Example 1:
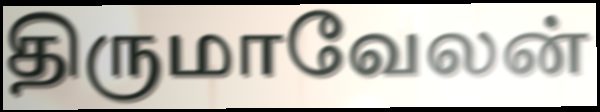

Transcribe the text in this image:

திருமாவேலன்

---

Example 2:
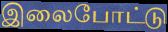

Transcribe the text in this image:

இலைபோட்டு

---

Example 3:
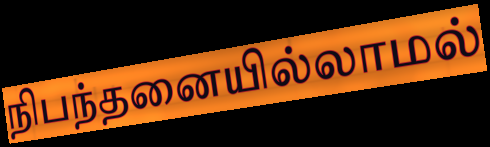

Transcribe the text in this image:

நிபந்தனையில்லாமல்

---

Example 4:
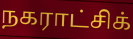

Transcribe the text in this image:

நகராட்சிக்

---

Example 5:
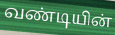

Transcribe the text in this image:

வண்டியின்